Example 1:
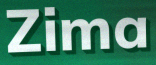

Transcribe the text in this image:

Zima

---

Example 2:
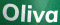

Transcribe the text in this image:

Oliva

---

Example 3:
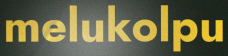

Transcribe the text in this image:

melukolpu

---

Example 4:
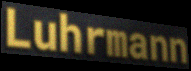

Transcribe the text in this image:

Luhrmann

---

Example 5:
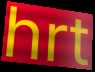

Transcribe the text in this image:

hrt